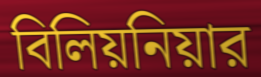
বিলিয়নিয়ার